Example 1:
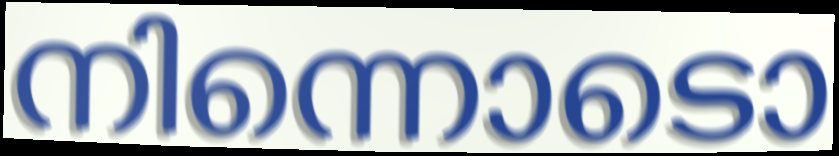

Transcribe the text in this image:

നിന്നൊടൊ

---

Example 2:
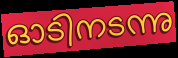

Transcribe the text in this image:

ഓടിനടന്നു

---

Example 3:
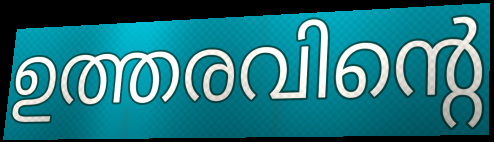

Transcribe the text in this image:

ഉത്തരവിന്റെ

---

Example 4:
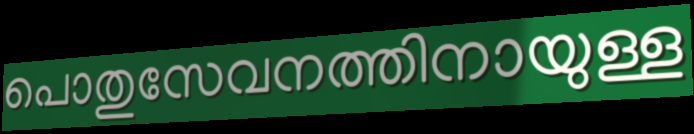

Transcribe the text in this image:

പൊതുസേവനത്തിനായുള്ള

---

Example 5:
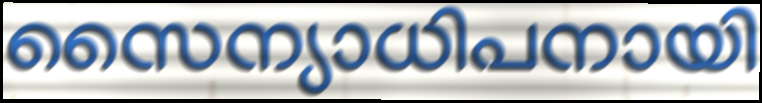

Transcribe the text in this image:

സൈന്യാധിപനായി